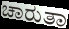
ಚಾರುತಾ